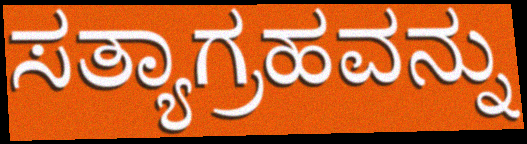
ಸತ್ಯಾಗ್ರಹವನ್ನು